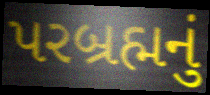
પરબ્રહ્મનું